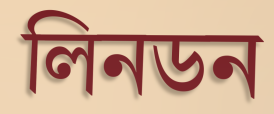
লিনডন